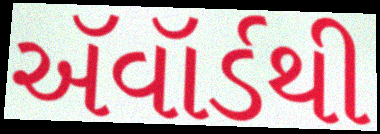
ઍવૉર્ડથી